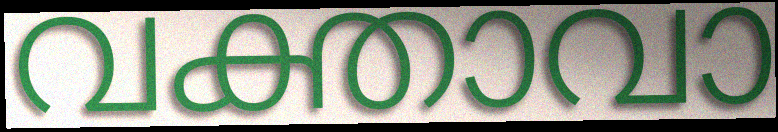
വക്താവാ